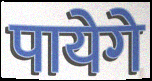
पायेगे